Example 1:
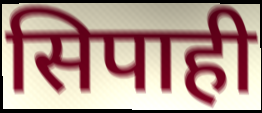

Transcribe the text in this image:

सिपाही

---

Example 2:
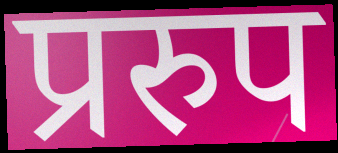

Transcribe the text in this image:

प्ररुप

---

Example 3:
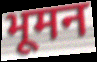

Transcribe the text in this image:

भूमन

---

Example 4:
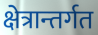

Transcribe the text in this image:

क्षेत्रान्‍तर्गत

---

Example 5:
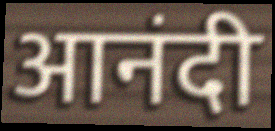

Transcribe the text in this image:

आनंदी